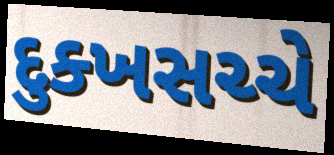
દુક્ખસચ્ચે